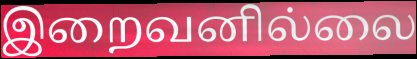
இறைவனில்லை